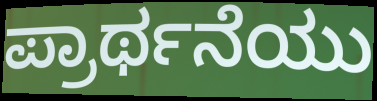
ಪ್ರಾರ್ಥನೆಯು